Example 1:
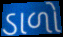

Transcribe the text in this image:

ડાળો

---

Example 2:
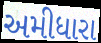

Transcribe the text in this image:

અમીધારા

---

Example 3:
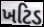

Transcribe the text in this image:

ખટિડ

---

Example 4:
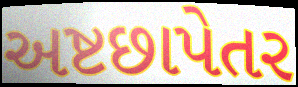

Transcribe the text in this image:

અષ્ટછાપેતર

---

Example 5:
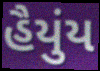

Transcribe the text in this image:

હૈયુંય